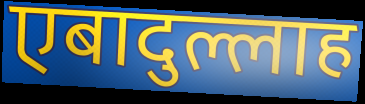
एबादुल्लाह